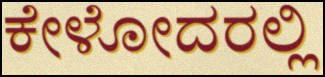
ಕೇಳೋದರಲ್ಲಿ